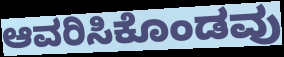
ಆವರಿಸಿಕೊಂಡವು